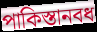
পাকিস্তানবধ